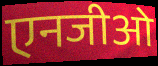
एनजीओ